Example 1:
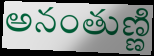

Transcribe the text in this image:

అనంతుణ్ణి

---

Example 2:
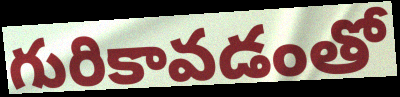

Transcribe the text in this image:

గురికావడంతో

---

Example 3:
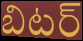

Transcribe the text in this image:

బిటర్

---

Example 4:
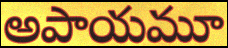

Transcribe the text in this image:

అపాయమూ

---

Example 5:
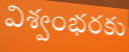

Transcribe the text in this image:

విశ్వంభరకు